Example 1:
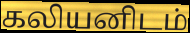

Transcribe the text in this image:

கலியனிடம்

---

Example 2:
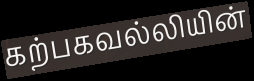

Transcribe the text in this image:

கற்பகவல்லியின்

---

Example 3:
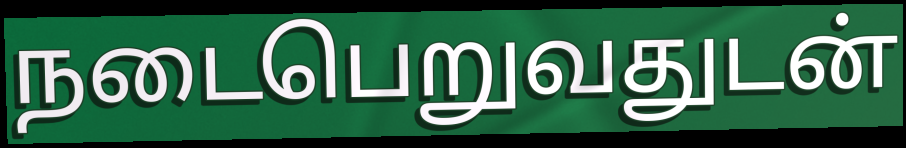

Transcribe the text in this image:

நடைபெறுவதுடன்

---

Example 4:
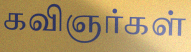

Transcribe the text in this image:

கவிஞர்கள்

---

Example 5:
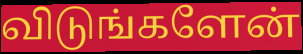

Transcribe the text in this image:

விடுங்களேன்